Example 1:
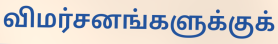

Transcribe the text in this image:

விமர்சனங்களுக்குக்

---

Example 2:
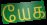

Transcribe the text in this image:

யேக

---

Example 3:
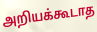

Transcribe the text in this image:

அறியக்கூடாத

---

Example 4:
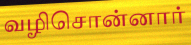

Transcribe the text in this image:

வழிசொன்னார்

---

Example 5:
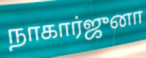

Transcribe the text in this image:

நாகார்ஜுனா